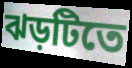
ঝড়টিতে